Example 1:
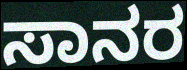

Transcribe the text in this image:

ಸಾನರ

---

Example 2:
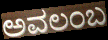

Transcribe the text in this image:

ಅವಲಂಬ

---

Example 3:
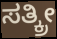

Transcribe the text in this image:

ಸತ್ಕ್ರೀ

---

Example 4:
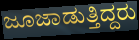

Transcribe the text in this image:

ಜೂಜಾಡುತ್ತಿದ್ದರು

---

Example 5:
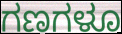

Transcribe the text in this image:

ಗಣಗಳೂ